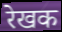
रेखक